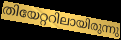
തിയേറ്ററിലായിരുന്നു